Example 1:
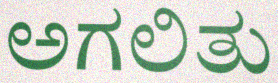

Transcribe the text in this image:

ಅಗಲಿತು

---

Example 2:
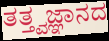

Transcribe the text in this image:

ತತ್ತ್ವಜ್ಞಾನದ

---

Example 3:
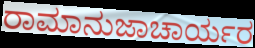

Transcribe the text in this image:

ರಾಮಾನುಜಾಚಾರ್ಯರ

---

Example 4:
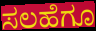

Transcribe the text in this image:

ಸಲಹೆಗೂ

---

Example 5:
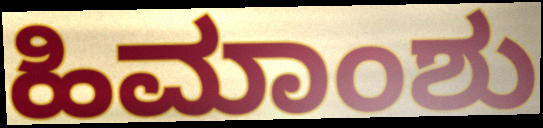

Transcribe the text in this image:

ಹಿಮಾಂಶು